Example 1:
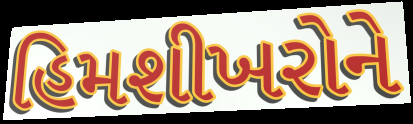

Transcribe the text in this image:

હિમશીખરોને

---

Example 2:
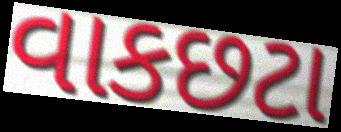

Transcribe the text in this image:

વાકછટા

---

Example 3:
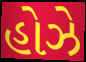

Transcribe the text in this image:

હોઝે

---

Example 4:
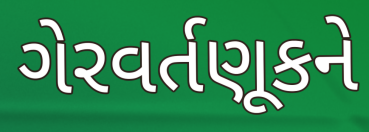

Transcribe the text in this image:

ગેરવર્તણૂકને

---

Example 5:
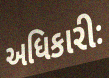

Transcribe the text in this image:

અધિકારીઃ